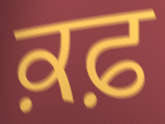
ਕ਼ਫ਼